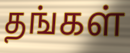
தங்கள்